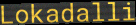
Lokadalli